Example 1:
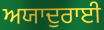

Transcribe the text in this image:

ਅਯਾਦੁਰਾਈ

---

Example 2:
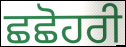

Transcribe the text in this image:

ਛਛੋਹਰੀ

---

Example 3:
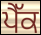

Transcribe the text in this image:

ਪੈੱਕ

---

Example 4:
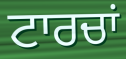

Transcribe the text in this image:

ਟਾਰਚਾਂ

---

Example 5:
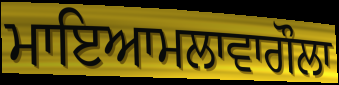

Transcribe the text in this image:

ਮਾਇਆਮਲਾਵਾਗੌਲਾ